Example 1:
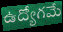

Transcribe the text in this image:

ఉద్యోగమే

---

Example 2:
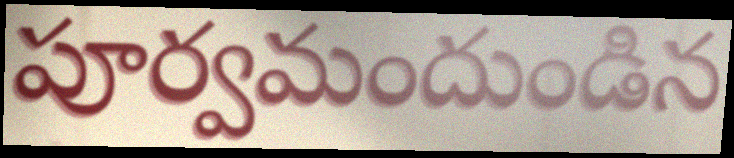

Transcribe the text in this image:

పూర్వమందుండిన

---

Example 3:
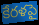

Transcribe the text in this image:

కేరళపై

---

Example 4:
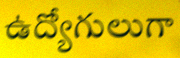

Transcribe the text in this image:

ఉద్యోగులుగా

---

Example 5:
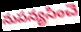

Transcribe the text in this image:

నుపన్యసించె